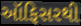
ઑફિસરથી